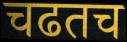
चढतच